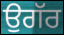
ਉਗੱਰ